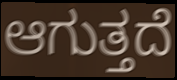
ಆಗುತ್ತದೆ